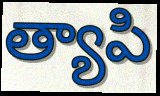
త్యాపి